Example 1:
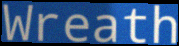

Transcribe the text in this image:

Wreath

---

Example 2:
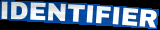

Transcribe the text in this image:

IDENTIFIER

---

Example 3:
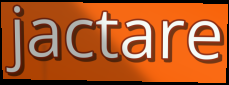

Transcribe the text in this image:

jactare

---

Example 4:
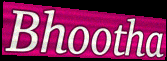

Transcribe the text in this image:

Bhootha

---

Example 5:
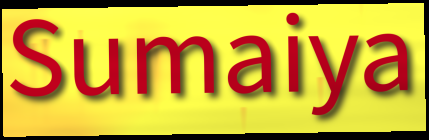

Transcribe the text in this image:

Sumaiya